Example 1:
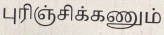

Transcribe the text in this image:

புரிஞ்சிக்கணும்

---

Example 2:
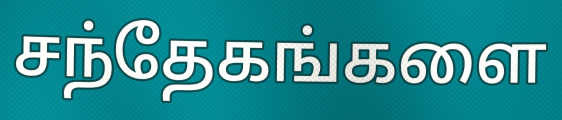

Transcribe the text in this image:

சந்தேகங்களை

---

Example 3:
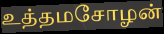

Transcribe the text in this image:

உத்தமசோழன்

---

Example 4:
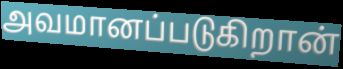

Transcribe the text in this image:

அவமானப்படுகிறான்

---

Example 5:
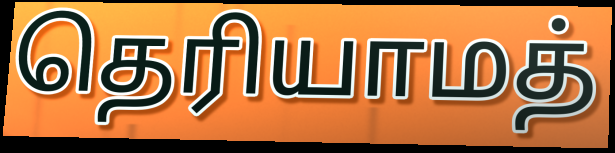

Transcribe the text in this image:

தெரியாமத்